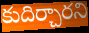
కుదిర్చారని